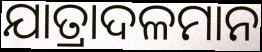
ଯାତ୍ରାଦଳମାନ